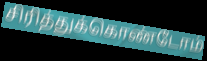
சிரித்துக்கொண்டோம்